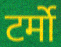
टर्मो